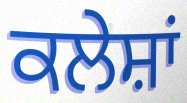
ਕਲੇਸ਼ਾਂ